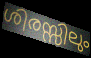
ശിരസ്സിലും